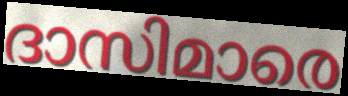
ദാസിമാരെ